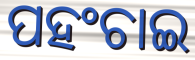
ପହଂଚାଇ